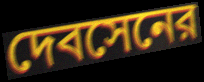
দেবসেনের